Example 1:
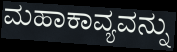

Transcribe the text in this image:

ಮಹಾಕಾವ್ಯವನ್ನು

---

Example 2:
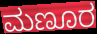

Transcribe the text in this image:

ಮಣೂರ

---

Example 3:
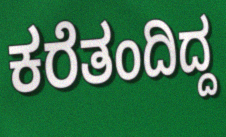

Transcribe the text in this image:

ಕರೆತಂದಿದ್ದ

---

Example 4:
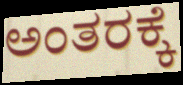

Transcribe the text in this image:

ಅಂತರಕ್ಕೆ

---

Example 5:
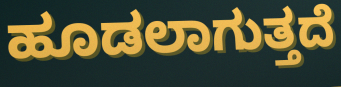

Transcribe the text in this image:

ಹೂಡಲಾಗುತ್ತದೆ